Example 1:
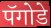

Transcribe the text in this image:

पॅगोडे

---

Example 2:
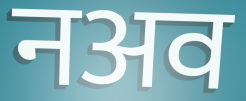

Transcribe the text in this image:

नअव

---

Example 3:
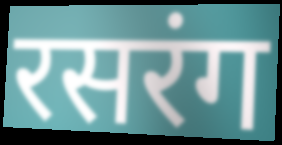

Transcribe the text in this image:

रसरंग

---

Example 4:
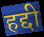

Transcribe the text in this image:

हद्दी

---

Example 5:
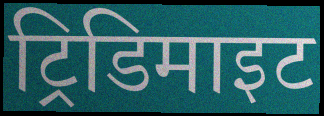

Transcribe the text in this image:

ट्रिडिमाइट